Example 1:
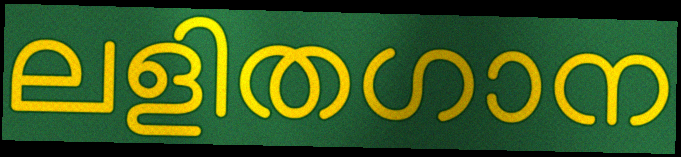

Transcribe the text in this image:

ലളിതഗാന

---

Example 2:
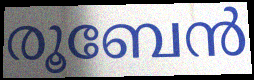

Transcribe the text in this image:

രൂബേൻ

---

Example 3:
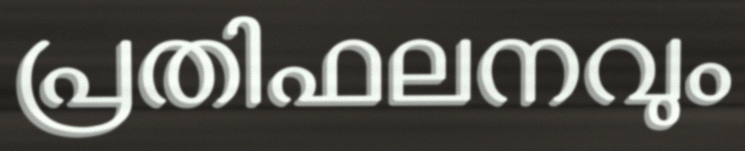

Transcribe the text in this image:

പ്രതിഫലനവും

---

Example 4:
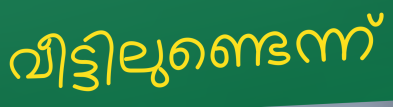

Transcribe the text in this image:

വീട്ടിലുണ്ടെന്ന്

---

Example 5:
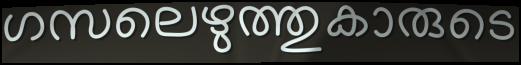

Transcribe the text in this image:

ഗസലെഴുത്തുകാരുടെ